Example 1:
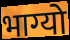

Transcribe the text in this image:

भाग्यो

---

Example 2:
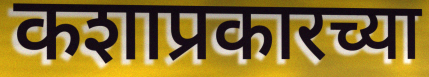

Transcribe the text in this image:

कशाप्रकारच्या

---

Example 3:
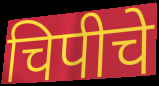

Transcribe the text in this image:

चिपीचे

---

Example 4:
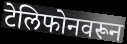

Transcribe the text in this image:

टेलिफोनवरून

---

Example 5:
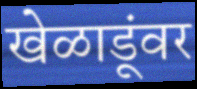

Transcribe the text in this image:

खेळाडूंवर